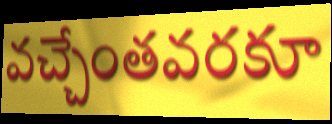
వచ్చేంతవరకూ